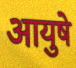
आयुषे